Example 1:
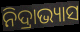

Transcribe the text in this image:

ନିଦ୍ରାଭ୍ୟାସ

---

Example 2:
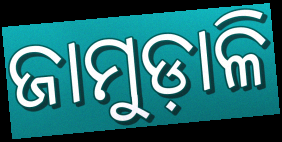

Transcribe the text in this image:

ଜାମୁଡ଼ାଳି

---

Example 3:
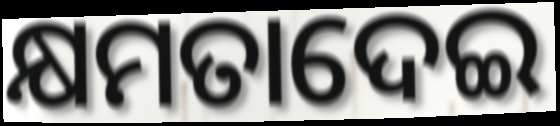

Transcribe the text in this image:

କ୍ଷମତାଦେଇ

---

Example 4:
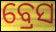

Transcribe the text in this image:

ବ୍ରେସ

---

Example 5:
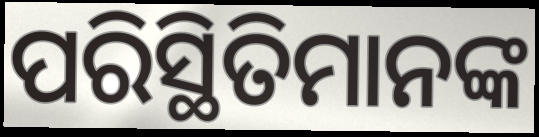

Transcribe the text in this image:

ପରିସ୍ଥିତିମାନଙ୍କ